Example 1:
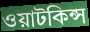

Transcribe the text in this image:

ওয়াটকিন্স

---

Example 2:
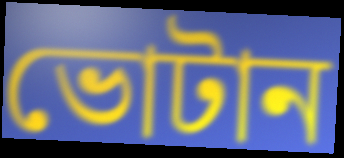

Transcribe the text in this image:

ভোটান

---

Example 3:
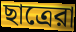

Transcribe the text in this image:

ছাত্রেরা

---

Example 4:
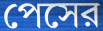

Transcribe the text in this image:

পেসের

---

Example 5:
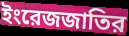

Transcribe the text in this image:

ইংরেজজাতির